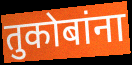
तुकोबांना